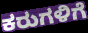
ಕರುಗಳಿಗೆ